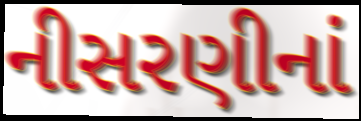
નીસરણીનાં